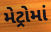
મેટ્રોમાં